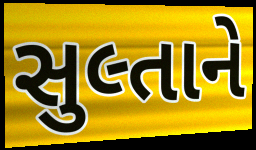
સુલ્તાને